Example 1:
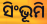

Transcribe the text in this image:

ସିଂଭୂମି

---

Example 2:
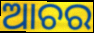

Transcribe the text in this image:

ଆଚର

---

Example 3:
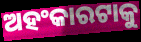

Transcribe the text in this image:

ଅହଂକାରଟାକୁ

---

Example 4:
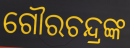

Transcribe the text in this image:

ଗୌରଚନ୍ଦ୍ରଙ୍କ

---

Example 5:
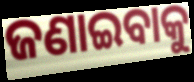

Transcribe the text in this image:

ଜଣାଇବାକୁ